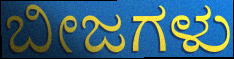
ಬೀಜಗಳು